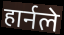
हार्नले